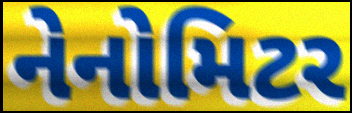
નેનોમિટર